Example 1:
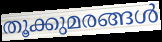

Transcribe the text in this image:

തൂക്കുമരങ്ങൾ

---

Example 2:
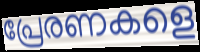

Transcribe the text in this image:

പ്രേരണകളെ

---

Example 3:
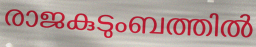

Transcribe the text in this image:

രാജകുടുംബത്തിൽ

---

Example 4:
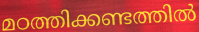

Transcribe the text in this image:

മഠത്തിക്കണ്ടത്തിൽ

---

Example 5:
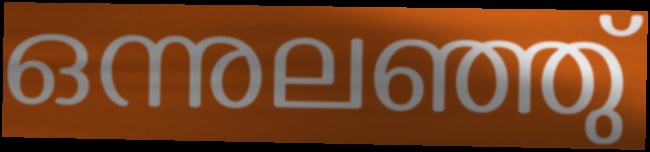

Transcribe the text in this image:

ഒന്നുലഞ്ഞു്